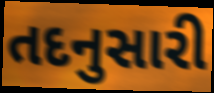
તદનુસારી